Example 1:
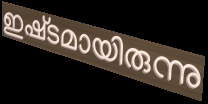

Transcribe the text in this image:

ഇഷ്‌ടമായിരുന്നു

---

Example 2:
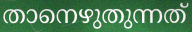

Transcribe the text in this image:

താനെഴുതുന്നത്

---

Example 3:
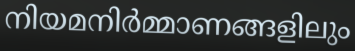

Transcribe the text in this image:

നിയമനിർമ്മാണങ്ങളിലും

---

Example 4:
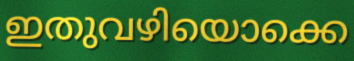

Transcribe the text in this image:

ഇതുവഴിയൊക്കെ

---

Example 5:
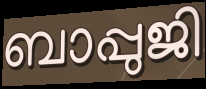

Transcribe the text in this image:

ബാപ്പുജി